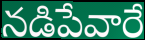
నడిపేవారే